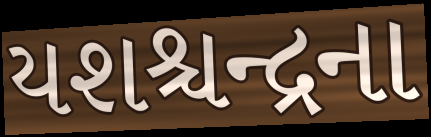
યશશ્ચન્દ્રના